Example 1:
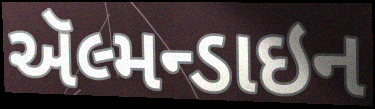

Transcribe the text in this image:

ઍલ્મન્ડાઇન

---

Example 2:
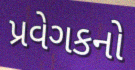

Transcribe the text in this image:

પ્રવેગકનો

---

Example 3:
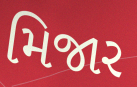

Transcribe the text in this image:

મિજાર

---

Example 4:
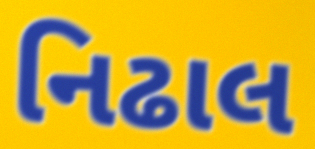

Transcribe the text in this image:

નિઢાલ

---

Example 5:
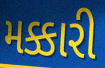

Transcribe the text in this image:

મક્કારી